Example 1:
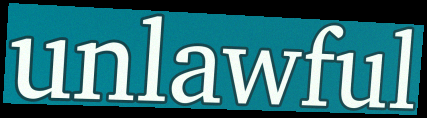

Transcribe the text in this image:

unlawful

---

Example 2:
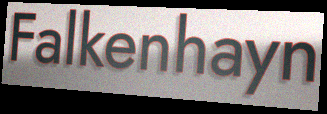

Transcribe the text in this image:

Falkenhayn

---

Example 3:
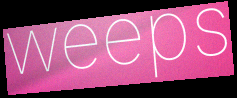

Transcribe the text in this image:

weeps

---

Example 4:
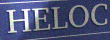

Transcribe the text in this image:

HELOC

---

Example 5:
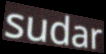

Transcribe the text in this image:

sudar